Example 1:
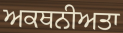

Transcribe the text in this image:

ਅਕਥਨੀਅਤਾ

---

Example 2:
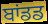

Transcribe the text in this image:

ਬਾਂਡਡ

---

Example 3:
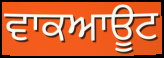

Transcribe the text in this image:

ਵਾਕਆਊਟ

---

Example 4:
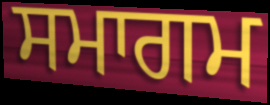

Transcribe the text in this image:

ਸਮਾਗਮ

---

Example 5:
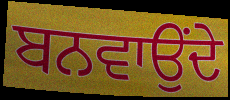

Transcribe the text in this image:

ਬਨਵਾਉਂਦੇ